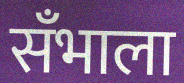
सँभाला